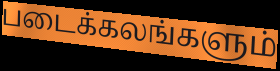
படைக்கலங்களும்